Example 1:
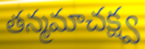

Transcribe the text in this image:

తన్మమాచక్ష్వ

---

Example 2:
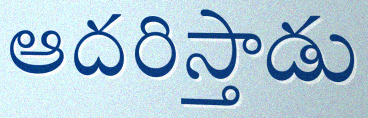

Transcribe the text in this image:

ఆదరిస్తాడు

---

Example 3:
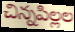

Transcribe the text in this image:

చిన్నపిల్లల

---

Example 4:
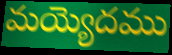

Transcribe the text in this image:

మయ్యెదము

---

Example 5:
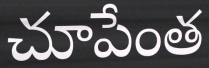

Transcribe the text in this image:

చూపేంత